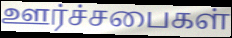
ஊர்ச்சபைகள்